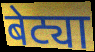
बेट्या